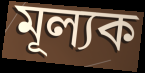
মূল্যক